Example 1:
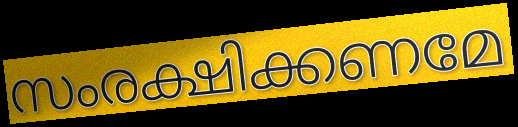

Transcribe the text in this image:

സംരക്ഷിക്കണമേ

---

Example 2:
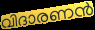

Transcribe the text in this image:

വിദാരണൻ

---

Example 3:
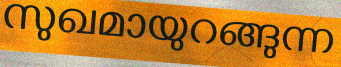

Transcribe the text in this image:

സുഖമായുറങ്ങുന്ന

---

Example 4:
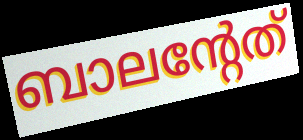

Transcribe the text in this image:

ബാലന്റേത്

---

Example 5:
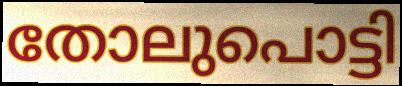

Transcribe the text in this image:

തോലുപൊട്ടി